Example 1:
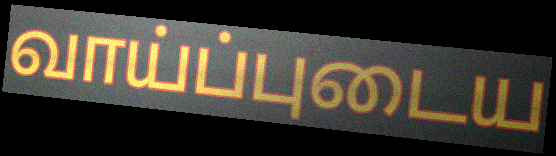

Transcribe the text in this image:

வாய்ப்புடைய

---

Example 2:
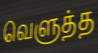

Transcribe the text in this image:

வெளுத்த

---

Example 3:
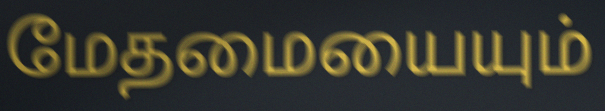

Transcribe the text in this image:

மேதமையையும்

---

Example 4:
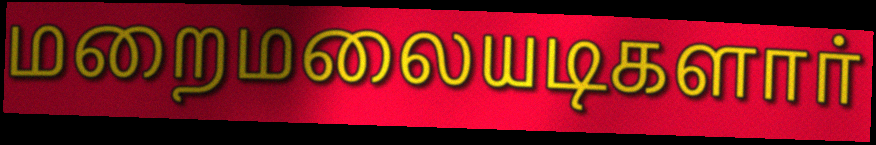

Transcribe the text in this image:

மறைமலையடிகளார்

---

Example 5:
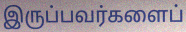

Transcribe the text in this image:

இருப்பவர்களைப்